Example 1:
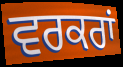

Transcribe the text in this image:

ਵਰਕਰਾਂ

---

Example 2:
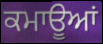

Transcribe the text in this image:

ਕਮਾਊਆਂ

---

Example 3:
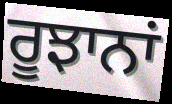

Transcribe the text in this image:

ਰੂਝਾਨਾਂ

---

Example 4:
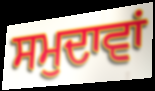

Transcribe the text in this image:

ਸਮੁਦਾਵਾਂ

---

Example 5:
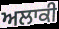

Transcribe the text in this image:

ਅਲਾਕੀ